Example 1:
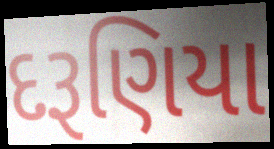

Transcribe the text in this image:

દરૂણિયા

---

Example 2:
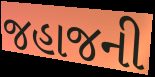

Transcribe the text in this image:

જહાજની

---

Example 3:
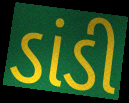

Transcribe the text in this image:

ડાંડી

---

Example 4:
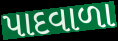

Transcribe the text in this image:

પાદવાળા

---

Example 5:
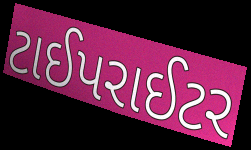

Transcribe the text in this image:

ટાઈપરાઈટર